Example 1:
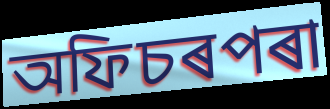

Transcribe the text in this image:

অফিচৰপৰা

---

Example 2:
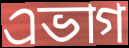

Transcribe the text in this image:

এভাগ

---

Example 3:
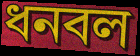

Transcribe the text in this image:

ধনবল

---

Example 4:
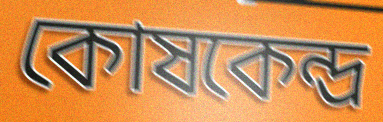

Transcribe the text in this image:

কোষকেন্দ্ৰ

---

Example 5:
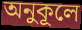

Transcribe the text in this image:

অনুকূলে